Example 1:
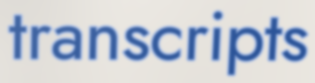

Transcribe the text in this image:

transcripts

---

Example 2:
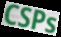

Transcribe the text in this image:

CSPs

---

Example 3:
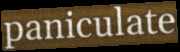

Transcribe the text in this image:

paniculate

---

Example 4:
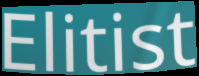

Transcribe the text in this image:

Elitist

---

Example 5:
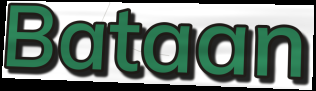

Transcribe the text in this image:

Bataan